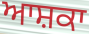
ਆਸ਼ਕਾ